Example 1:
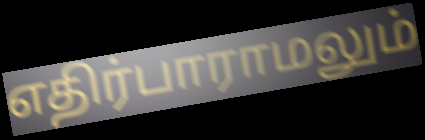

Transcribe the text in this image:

எதிர்பாராமலும்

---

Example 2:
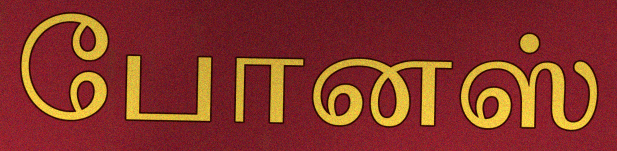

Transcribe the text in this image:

போனஸ்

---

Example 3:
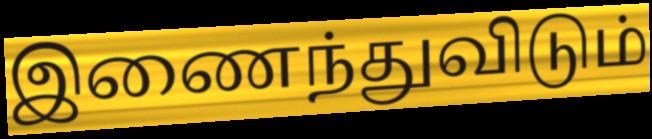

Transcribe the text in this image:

இணைந்துவிடும்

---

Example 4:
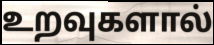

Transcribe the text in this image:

உறவுகளால்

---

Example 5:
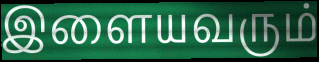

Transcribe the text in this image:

இளையவரும்